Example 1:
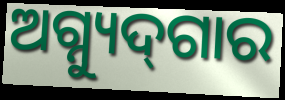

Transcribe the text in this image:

ଅଗ୍ନ୍ୟୁଦ୍‌ଗାର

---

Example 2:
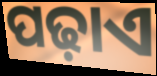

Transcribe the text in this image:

ପଢ଼ାଏ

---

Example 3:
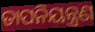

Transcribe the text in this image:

ତାପନିୟନ୍ତ୍ରଣ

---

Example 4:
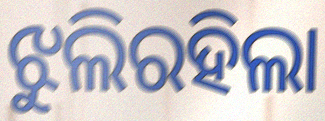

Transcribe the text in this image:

ଝୁଲିରହିଲା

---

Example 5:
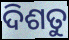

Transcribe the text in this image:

ଦିଶତୁ